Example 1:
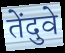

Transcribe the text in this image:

तेंदुवे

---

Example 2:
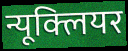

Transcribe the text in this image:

न्यूक्लियर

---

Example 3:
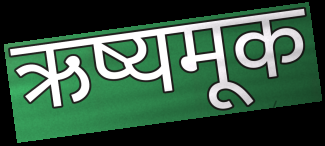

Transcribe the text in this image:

ऋष्यमूक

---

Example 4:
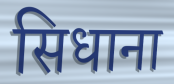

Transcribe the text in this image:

सिधाना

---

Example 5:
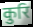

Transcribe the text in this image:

कुरि